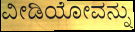
ವೀಡಿಯೋವನ್ನು